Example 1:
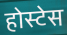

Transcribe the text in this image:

होस्टेस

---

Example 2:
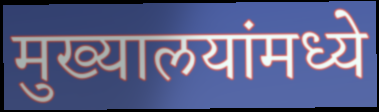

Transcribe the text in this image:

मुख्यालयांमध्ये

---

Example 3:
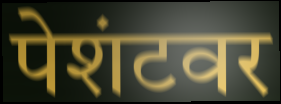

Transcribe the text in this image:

पेशंटवर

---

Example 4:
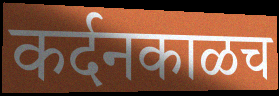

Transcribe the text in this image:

कर्दनकाळच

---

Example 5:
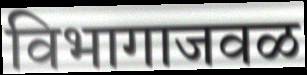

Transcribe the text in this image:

विभागाजवळ